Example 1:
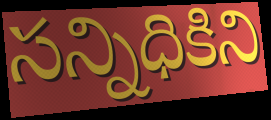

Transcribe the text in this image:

సన్నిధికిని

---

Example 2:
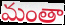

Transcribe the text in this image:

మంతా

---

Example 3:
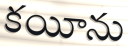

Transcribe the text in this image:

కయీను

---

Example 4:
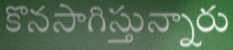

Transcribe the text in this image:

కొనసాగిస్తున్నారు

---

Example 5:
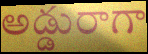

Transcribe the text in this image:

అడ్డురాగా